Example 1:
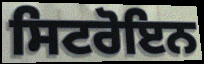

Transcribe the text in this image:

ਸਿਟਰੋਇਨ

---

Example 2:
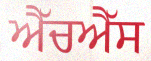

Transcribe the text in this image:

ਐੱਚਐੱਸ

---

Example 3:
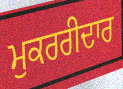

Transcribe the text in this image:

ਮੁਕਰਰੀਦਾਰ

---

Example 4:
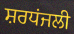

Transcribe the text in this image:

ਸ਼ਰਧਂਜਲੀ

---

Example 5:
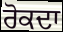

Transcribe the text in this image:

ਰੋਕਦਾ